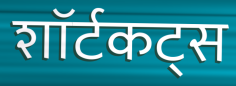
शॉर्टकट्स